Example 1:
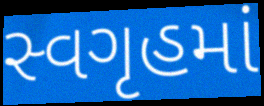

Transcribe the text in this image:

સ્વગૃહમાં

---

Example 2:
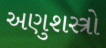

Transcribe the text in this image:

અણુશસ્ત્રો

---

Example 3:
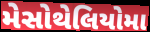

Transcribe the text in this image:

મેસોથેલિયોમા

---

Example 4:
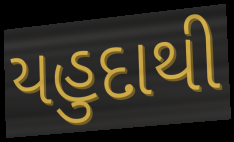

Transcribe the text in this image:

યહુદાથી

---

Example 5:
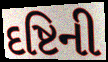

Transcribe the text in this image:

દષ્ટિની